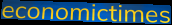
economictimes